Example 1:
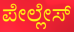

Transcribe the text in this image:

ಪೇಲ್ಲೇಸ್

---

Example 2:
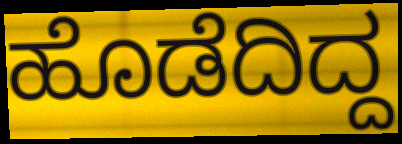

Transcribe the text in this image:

ಹೊಡೆದಿದ್ದ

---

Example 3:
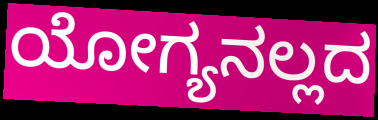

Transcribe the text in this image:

ಯೋಗ್ಯನಲ್ಲದ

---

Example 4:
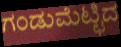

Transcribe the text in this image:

ಗಂಡುಮೆಟ್ಟಿದ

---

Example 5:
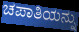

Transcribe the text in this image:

ಚಪಾತಿಯನ್ನು